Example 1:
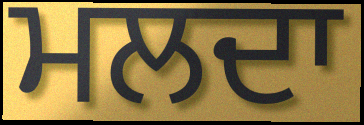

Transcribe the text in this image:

ਮਲਦਾ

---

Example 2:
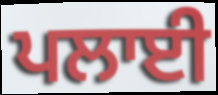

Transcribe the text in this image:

ਪਲਾਈ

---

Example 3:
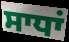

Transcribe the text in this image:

ਸਾਧਾਂ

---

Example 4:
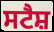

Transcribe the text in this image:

ਸਟੈਸ਼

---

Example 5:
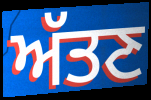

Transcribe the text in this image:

ਅੱਤਣ